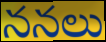
ననలు